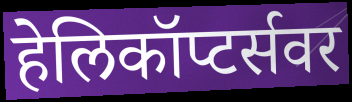
हेलिकॉप्टर्सवर